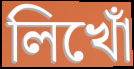
লিখোঁ